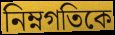
নিম্নগতিকে